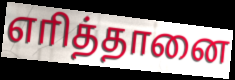
எரித்தானை